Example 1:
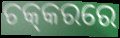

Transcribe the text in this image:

ଚକ୍‌କରରେ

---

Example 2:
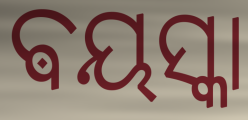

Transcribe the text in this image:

ଵୟସ୍କା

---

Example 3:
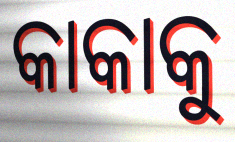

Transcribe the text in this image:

କାକାକୁ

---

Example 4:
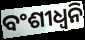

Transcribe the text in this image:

ବଂଶୀଧ୍ବନି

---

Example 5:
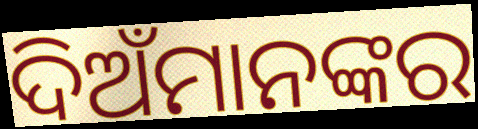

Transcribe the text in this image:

ଦିଅଁମାନଙ୍କର